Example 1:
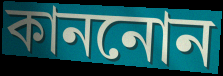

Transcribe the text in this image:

কাননোন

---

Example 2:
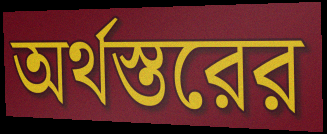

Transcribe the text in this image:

অর্থস্তরের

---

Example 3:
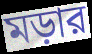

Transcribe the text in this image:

মড়ার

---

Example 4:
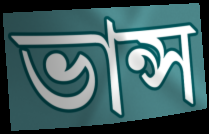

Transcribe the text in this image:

ভান্স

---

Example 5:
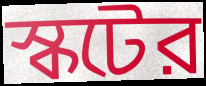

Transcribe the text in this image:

স্কটের